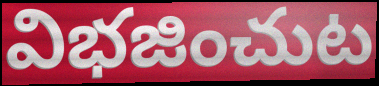
విభజించుట